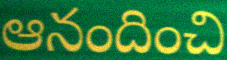
ఆనందించి